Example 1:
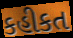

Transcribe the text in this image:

કહીકત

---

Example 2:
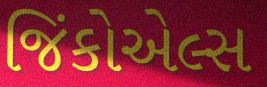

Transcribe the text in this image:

જિંકોએલ્સ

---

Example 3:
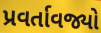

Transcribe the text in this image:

પ્રવર્તાવજ્યો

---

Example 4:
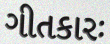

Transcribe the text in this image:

ગીતકારઃ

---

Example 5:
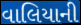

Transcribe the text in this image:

વાલિયાની